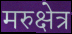
मरुक्षेत्र